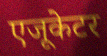
एजूकेटर